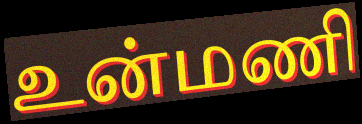
உன்மணி